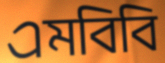
এমবিবি